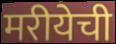
मरीयेची